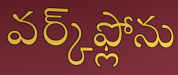
వర్క్‌ఫ్లోను